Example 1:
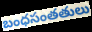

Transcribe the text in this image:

బంధసంతతులు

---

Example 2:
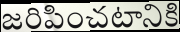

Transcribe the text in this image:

జరిపించటానికి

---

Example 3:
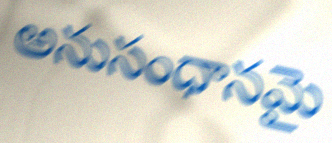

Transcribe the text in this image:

అనుసంధానమై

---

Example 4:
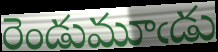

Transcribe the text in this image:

రెండుమూఁడు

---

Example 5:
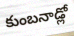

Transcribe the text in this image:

కుంబనాడ్లో